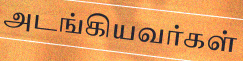
அடங்கியவர்கள்